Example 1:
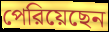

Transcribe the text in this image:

পেরিয়েছেন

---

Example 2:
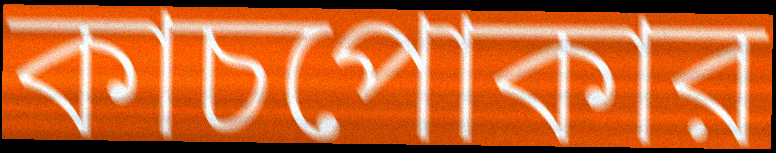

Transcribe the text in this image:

কাচপোকার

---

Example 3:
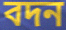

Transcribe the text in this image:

বদন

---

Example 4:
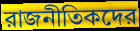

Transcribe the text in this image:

রাজনীতিকদের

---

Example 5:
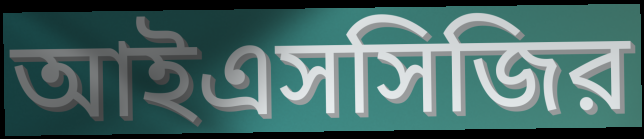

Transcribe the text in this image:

আইএসসিজির